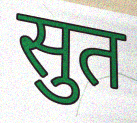
सुत